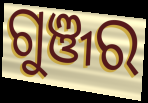
ଗୁଞ୍ଜର